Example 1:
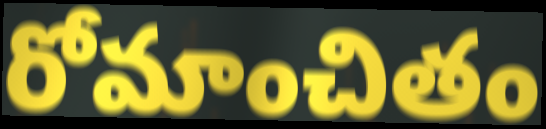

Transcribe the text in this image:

రోమాంచితం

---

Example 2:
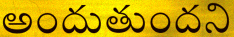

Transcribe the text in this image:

అందుతుందని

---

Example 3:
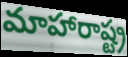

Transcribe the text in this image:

మాహారాష్ట్ర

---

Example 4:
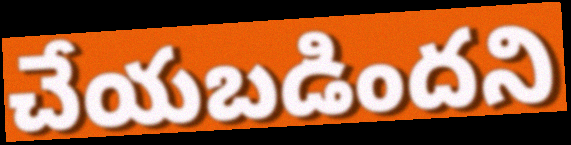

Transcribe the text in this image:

చేయబడిందని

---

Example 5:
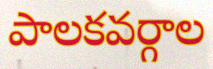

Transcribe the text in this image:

పాలకవర్గాల